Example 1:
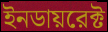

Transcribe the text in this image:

ইনডায়রেক্ট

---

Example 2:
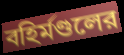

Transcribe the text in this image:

বহির্মণ্ডলের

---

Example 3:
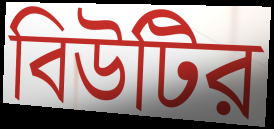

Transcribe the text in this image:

বিউটির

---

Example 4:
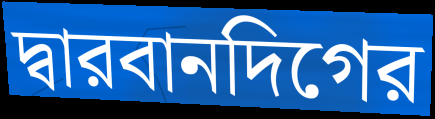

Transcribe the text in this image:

দ্বারবানদিগের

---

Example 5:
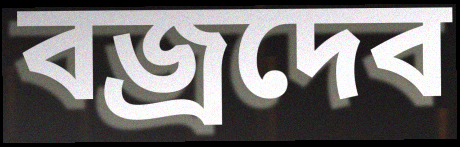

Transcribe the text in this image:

বজ্রদেব